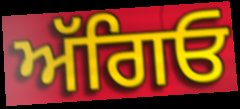
ਅੱਗਿਓ